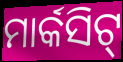
ମାର୍କସିଟ୍